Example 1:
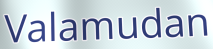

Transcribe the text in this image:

Valamudan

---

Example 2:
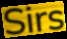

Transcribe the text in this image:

Sirs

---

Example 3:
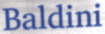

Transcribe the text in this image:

Baldini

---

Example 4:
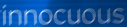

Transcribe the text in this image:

innocuous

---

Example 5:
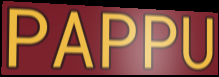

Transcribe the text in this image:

PAPPU